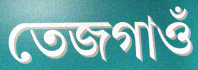
তেজগাওঁ